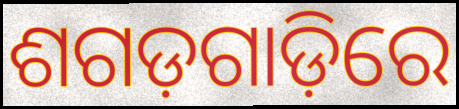
ଶଗଡ଼ଗାଡ଼ିରେ